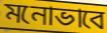
মনোভাবে